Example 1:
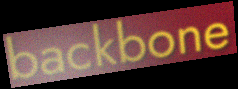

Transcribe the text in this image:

backbone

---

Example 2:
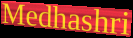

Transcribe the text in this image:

Medhashri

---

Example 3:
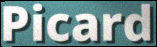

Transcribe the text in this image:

Picard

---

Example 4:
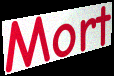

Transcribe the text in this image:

Mort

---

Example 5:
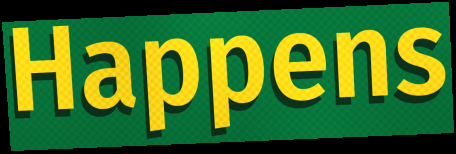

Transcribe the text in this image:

Happens